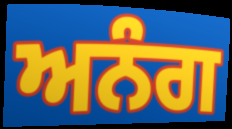
ਅਨੰਗ